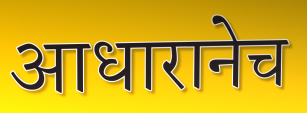
आधारानेच